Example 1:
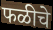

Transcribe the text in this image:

फळीचे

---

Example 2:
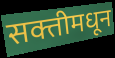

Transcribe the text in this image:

सक्तीमधून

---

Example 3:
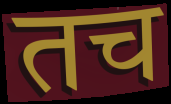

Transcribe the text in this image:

तच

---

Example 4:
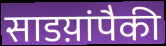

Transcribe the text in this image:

साडय़ांपैकी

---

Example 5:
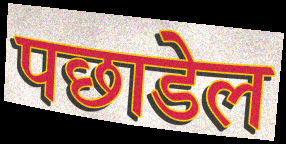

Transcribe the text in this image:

पछाडेल